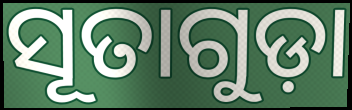
ସୂତାଗୁଡ଼ା